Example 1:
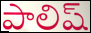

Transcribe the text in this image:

పాలిష్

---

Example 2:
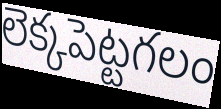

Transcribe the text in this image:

లెక్కపెట్టగలం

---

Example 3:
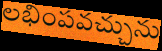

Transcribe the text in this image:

లభింపవచ్చును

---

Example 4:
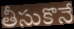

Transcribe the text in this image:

తీసుకొనే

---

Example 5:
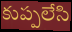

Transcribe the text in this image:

కుప్పలేసి